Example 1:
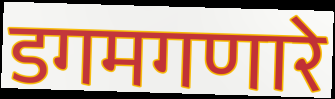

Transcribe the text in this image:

डगमगणारे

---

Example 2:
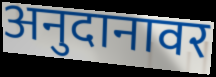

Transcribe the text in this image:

अनुदानावर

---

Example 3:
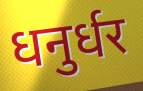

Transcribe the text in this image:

धनुर्धर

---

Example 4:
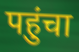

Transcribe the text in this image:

पहुंचा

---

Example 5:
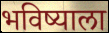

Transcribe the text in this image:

भविष्याला